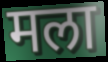
मला